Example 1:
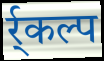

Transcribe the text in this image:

र्र्कल्प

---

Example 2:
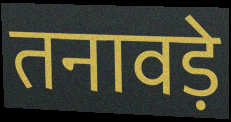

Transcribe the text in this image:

तनावड़े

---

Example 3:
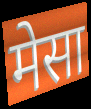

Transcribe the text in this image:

मेसा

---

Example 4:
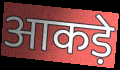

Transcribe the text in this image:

आकड़े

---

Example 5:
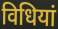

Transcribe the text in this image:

विधियां